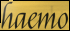
haemo